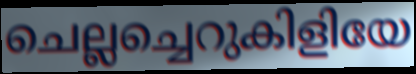
ചെല്ലച്ചെറുകിളിയേ